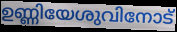
ഉണ്ണിയേശുവിനോട്